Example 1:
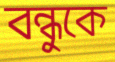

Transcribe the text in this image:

বন্ধুকে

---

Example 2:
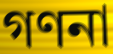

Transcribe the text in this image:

গণনা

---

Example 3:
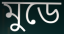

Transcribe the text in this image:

মুডে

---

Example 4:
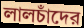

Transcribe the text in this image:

লালচাঁদের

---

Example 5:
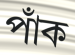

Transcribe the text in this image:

পাঁক